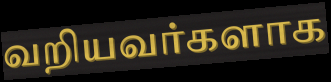
வறியவர்களாக